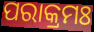
ପରାକ୍ରମଃ